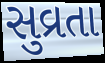
સુવ્રતા